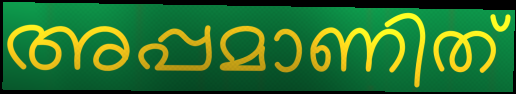
അപ്പമാണിത്